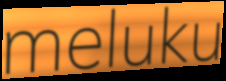
meluku